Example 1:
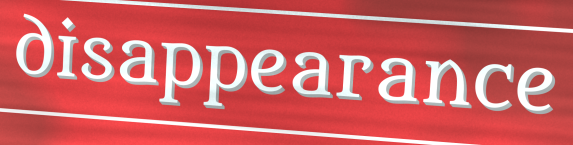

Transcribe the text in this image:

disappearance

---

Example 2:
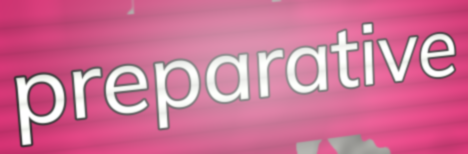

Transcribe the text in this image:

preparative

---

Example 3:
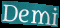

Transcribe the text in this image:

Demi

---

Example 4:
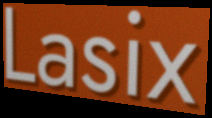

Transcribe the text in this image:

Lasix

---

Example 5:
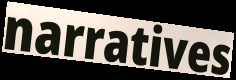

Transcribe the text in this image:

narratives